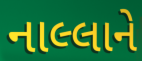
નાલ્લાને